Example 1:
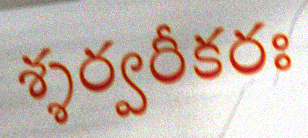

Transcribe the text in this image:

శ్శర్వరీకరః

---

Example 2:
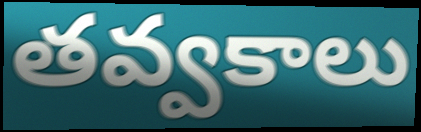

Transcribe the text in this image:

తవ్వకాలు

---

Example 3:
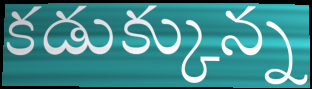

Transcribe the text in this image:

కడుక్కున్న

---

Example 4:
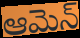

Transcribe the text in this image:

ఆమెన్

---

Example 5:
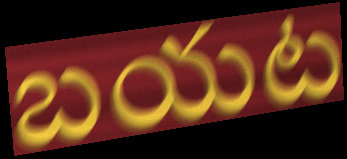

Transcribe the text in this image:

బయట